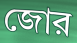
জোর